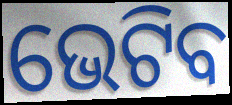
ଭେଟିବ